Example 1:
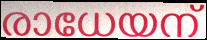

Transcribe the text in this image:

രാധേയന്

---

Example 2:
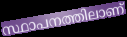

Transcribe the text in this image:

സ്ഥാപനത്തിലാണ്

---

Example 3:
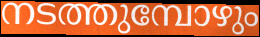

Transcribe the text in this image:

നടത്തുമ്പോഴും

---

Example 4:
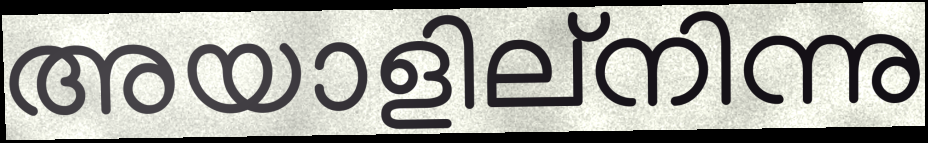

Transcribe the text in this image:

അയാളില്നിന്നു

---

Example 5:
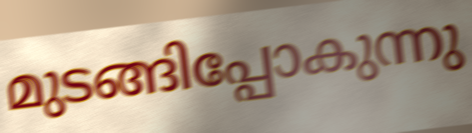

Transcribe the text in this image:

മുടങ്ങിപ്പോകുന്നു